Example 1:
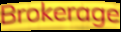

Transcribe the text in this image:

Brokerage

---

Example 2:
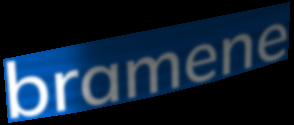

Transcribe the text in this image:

bramene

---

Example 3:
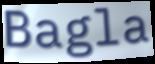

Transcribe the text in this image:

Bagla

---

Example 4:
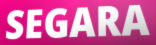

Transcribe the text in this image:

SEGARA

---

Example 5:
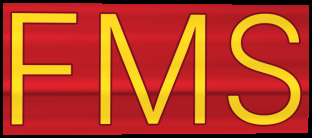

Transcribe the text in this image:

FMS